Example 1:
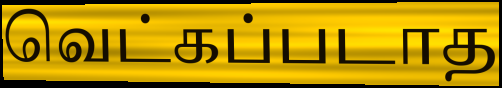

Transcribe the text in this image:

வெட்கப்படாத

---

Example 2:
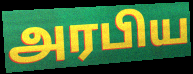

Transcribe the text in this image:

அரபிய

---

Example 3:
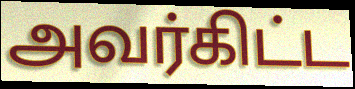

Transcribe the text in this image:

அவர்கிட்ட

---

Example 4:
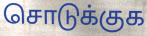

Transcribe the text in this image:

சொடுக்குக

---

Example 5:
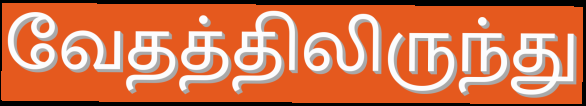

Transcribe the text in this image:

வேதத்திலிருந்து